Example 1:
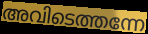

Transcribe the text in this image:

അവിടെത്തന്നേ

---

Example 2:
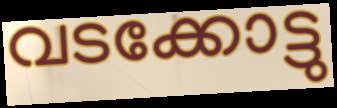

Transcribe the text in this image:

വടക്കോട്ടു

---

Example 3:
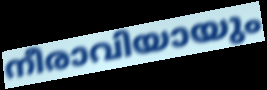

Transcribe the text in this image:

നീരാവിയായും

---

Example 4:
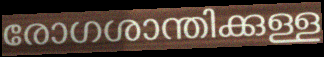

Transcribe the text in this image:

രോഗശാന്തിക്കുള്ള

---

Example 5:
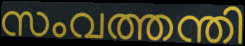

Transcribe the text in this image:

സംവത്തന്തി